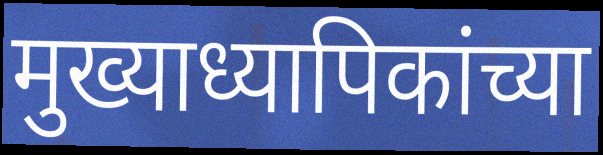
मुख्याध्यापिकांच्या